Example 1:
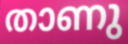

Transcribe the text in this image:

താണു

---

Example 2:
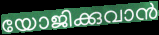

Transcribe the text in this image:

യോജിക്കുവാൻ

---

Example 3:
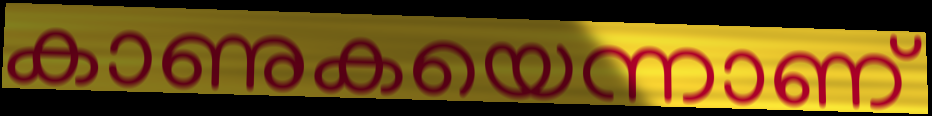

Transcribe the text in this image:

കാണുകയെന്നാണ്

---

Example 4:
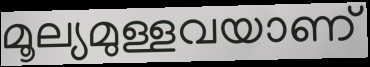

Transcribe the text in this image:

മൂല്യമുള്ളവയാണ്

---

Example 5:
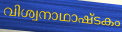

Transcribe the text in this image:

വിശ്വനാഥാഷ്ടകം